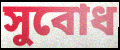
সুবোধ